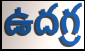
ఉదగ్ర